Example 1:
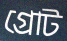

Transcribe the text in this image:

গ্রোট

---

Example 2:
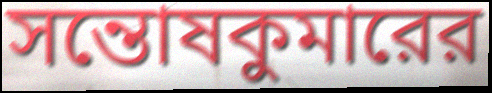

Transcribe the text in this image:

সন্তোষকুমারের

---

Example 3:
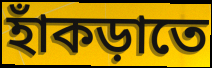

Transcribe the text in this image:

হাঁকড়াতে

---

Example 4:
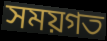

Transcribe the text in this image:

সময়গত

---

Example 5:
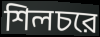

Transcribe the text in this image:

শিলচরে